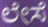
ಲೇಸೆ